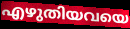
എഴുതിയവയെ